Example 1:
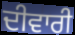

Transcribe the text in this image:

ਦੀਵਾਰੀ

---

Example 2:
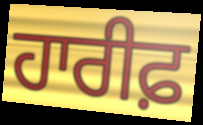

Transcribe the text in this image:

ਹਾਰੀਫ਼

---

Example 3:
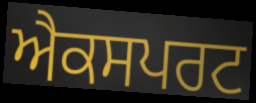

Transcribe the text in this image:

ਐਕਸਪਰਟ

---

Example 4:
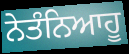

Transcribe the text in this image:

ਨੇਤੰਨਿਆਹੂ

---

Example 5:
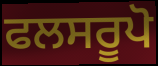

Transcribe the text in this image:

ਫਲਸਰੂਪੋ